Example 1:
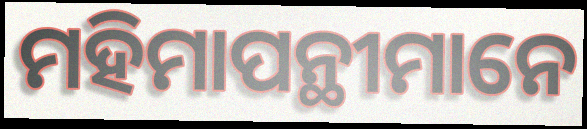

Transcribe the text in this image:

ମହିମାପନ୍ଥୀମାନେ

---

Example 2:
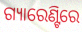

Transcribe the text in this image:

ଗ୍ୟାରେଣ୍ଟିରେ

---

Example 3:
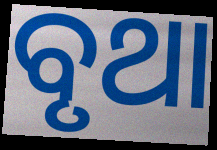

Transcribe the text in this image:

ବୃଥା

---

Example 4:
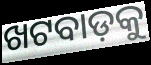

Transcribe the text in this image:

ଖଟବାଡ଼କୁ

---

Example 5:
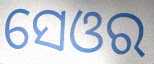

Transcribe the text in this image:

ସେଓର